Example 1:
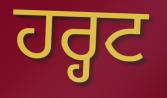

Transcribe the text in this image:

ਹਰ੍ਹਟ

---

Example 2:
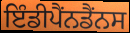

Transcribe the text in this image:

ਇੰਡੀਪੈਂਨਡੈਂਨਸ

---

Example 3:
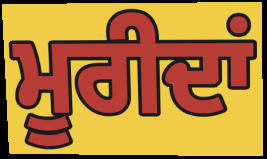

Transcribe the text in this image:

ਮੂਰੀਦਾਂ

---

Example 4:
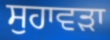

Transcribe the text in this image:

ਸੁਹਾਵੜਾ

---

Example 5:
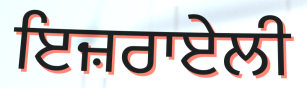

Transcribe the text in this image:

ਇਜ਼ਰਾਏਲੀ